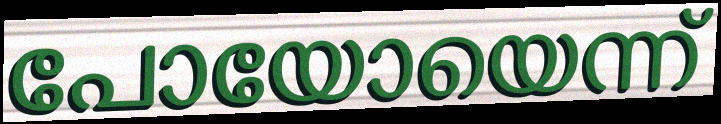
പോയോയെന്ന്